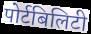
पोर्टबिलिटी